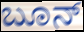
ಬೂನ್